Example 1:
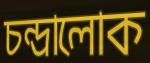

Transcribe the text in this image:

চন্দ্ৰালোক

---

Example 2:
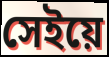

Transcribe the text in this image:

সেইয়ে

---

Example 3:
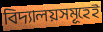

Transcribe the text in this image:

বিদ্যালয়সমূহেই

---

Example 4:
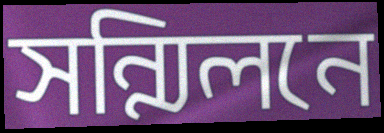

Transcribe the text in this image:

সন্মিলনে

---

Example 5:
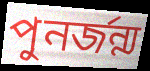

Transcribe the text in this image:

পুনৰ্জন্ম